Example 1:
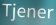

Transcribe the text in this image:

Tjener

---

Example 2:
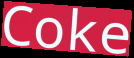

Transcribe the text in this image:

Coke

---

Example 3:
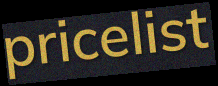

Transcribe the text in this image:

pricelist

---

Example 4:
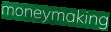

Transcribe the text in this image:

moneymaking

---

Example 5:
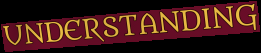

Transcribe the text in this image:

UNDERSTANDING